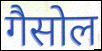
गैसोल